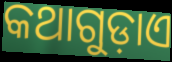
କଥାଗୁଡ଼ାଏ